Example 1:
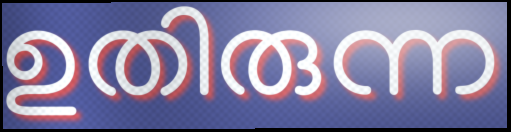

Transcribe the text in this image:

ഉതിരുന്ന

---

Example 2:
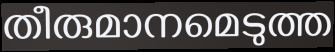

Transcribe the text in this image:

തീരുമാനമെടുത്ത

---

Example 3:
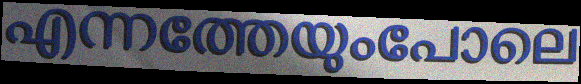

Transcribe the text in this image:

എന്നത്തേയുംപോലെ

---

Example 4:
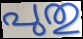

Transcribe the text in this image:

പുതു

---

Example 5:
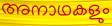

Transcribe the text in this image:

അനാഥകളും